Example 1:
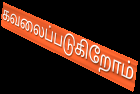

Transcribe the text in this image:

கவலைப்படுகிறோம்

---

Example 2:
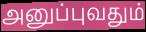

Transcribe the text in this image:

அனுப்புவதும்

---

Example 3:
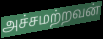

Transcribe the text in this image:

அச்சமற்றவன்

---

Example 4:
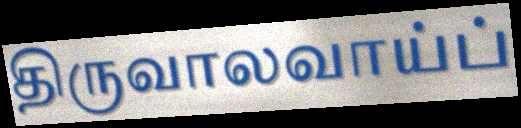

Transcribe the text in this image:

திருவாலவாய்ப்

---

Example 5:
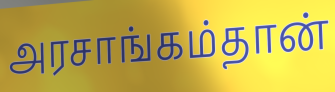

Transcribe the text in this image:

அரசாங்கம்தான்